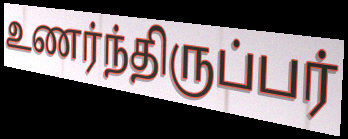
உணர்ந்திருப்பர்